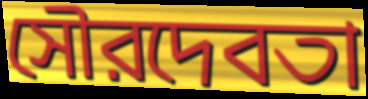
সৌরদেবতা